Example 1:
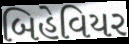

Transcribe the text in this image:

બિહેવિયર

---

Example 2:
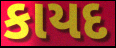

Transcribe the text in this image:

કાયદ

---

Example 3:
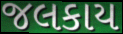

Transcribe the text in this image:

જલકાય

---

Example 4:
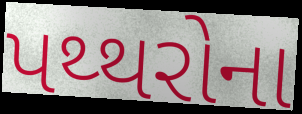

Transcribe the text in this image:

પથ્થરોના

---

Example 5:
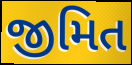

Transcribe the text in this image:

જીમિત